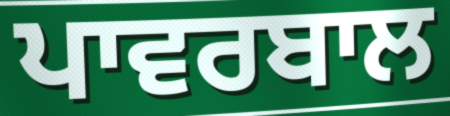
ਪਾਵਰਬਾਲ